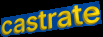
castrate